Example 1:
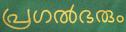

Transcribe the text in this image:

പ്രഗൽഭരും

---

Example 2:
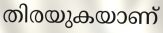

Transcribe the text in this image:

തിരയുകയാണ്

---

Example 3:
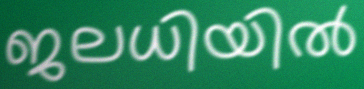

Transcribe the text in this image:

ജലധിയിൽ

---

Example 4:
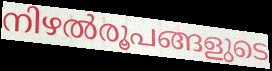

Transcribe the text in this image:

നിഴൽരൂപങ്ങളുടെ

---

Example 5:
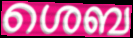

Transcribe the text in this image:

ശെബ